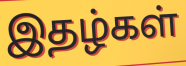
இதழ்கள்